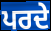
ਪਰਦੇ